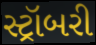
સ્ટ્રૉબરી